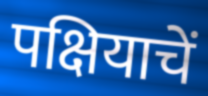
पक्षियाचें